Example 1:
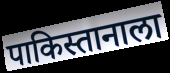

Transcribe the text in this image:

पाकिस्तानाला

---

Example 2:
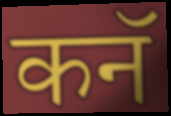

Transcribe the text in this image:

कनॅ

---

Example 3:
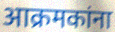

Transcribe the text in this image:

आक्रमकांना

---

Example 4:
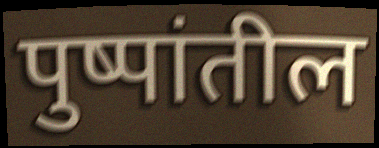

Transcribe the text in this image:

पुष्पांतील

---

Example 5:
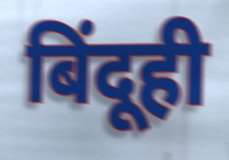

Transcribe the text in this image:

बिंदूही